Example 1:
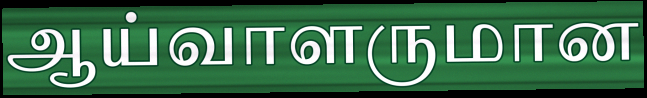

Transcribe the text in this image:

ஆய்வாளருமான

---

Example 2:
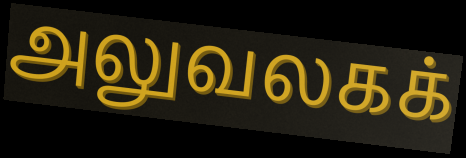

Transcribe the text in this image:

அலுவலகக்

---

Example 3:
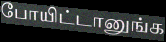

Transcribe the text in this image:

போயிட்டானுங்க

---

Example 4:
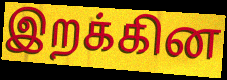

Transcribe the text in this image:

இறக்கின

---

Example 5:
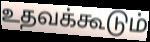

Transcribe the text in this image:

உதவக்கூடும்